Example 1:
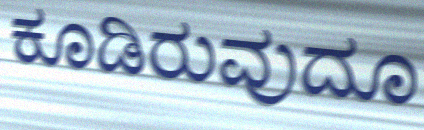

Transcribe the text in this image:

ಕೂಡಿರುವುದೂ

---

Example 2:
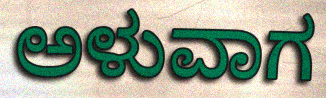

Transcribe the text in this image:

ಅಳುವಾಗ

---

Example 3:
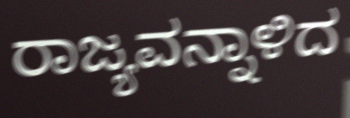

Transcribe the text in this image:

ರಾಜ್ಯವನ್ನಾಳಿದ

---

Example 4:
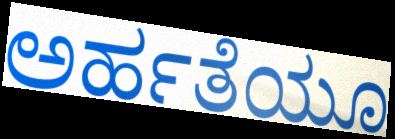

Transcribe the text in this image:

ಅರ್ಹತೆಯೂ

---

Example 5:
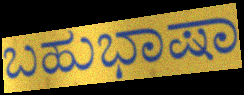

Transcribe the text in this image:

ಬಹುಭಾಷಾ